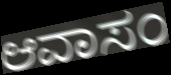
ಆವಾಸಂ